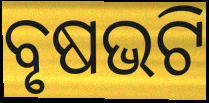
ବୃଷଭଟି